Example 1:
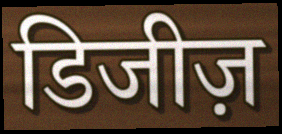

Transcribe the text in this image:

डिजीज़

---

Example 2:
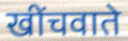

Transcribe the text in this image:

खींचवाते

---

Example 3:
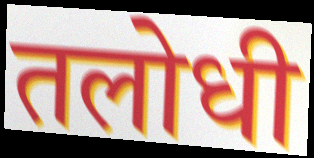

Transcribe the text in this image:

तलोधी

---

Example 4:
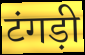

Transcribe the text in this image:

टंगड़ी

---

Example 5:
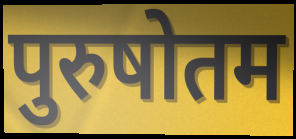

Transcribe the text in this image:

पुरुषोतम